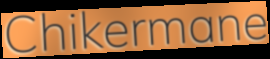
Chikermane